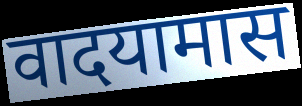
वादयामास